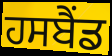
ਹਸਬੈਂਡ